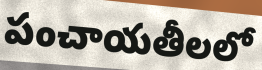
పంచాయతీలలో